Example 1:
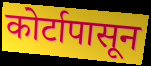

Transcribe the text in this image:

कोर्टापासून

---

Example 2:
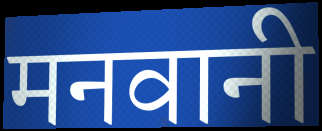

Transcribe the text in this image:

मनवानी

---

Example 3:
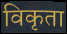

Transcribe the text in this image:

विकृता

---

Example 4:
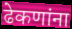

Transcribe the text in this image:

ढेकणांना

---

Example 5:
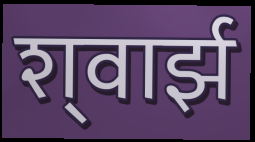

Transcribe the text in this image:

श्वार्झ